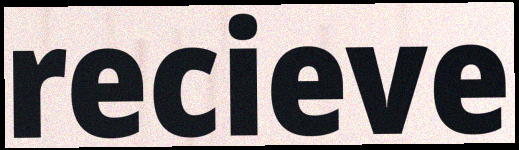
recieve